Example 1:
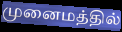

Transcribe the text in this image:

முனைமத்தில்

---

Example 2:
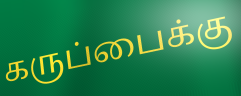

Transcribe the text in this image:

கருப்பைக்கு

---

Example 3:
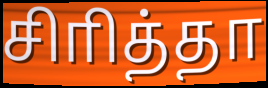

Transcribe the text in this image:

சிரித்தா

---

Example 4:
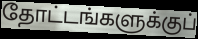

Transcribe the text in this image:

தோட்டங்களுக்குப்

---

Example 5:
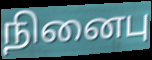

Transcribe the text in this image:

நினைபு